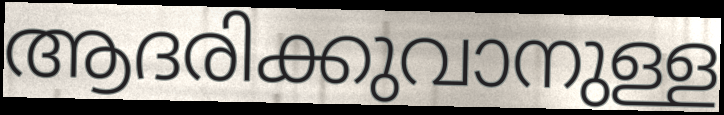
ആദരിക്കുവാനുള്ള